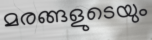
മരങ്ങളുടെയും